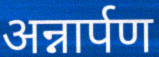
अन्नार्पण